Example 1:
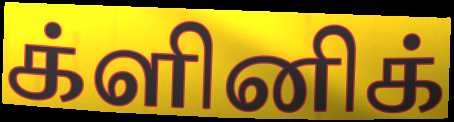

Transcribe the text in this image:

க்ளினிக்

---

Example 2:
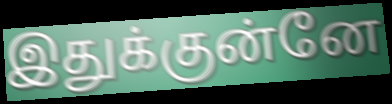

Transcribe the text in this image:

இதுக்குன்னே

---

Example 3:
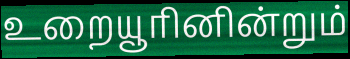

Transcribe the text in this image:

உறையூரினின்றும்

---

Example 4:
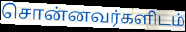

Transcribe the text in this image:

சொன்னவர்களிடம்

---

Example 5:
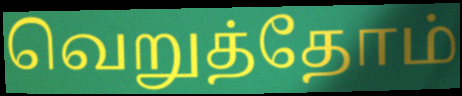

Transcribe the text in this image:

வெறுத்தோம்